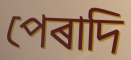
পেৰাদি